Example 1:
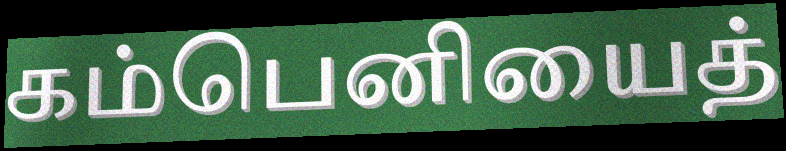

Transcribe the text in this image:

கம்பெனியைத்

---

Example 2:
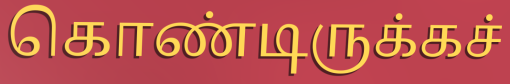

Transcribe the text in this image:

கொண்டிருக்கச்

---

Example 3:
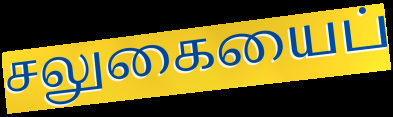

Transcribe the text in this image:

சலுகையைப்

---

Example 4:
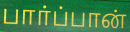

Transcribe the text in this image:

பார்ப்பான்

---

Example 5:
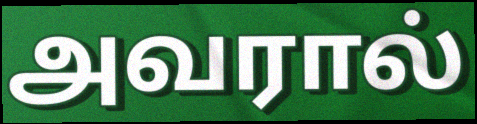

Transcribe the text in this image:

அவரால்